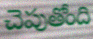
చెపుతోంది